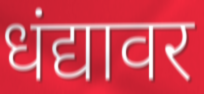
धंद्यावर